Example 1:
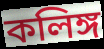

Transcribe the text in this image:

কলিঙ্গ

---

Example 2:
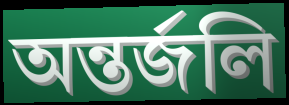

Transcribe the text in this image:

অন্তর্জলি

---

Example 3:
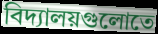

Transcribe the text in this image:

বিদ্যালয়গুলোতে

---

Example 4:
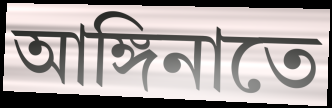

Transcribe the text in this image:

আঙ্গিনাতে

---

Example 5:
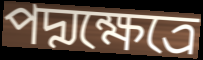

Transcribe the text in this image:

পদ্মক্ষেত্রে